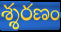
శ్శరణం